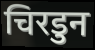
चिरडुन